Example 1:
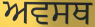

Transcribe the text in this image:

ਅਵਸਥ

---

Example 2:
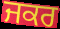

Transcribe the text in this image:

ਜਕਰ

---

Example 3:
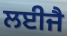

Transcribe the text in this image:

ਲਈਜੈ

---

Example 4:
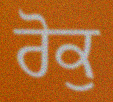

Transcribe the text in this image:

ਰੋਕੁ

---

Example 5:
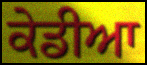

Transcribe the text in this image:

ਕੇਡੀਆ